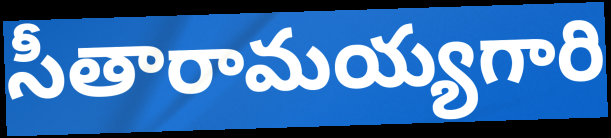
సీతారామయ్యగారి